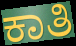
ಕಾತಿ